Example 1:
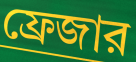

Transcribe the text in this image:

ফ্রেজার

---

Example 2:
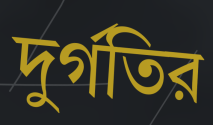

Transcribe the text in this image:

দুর্গতির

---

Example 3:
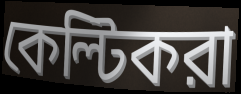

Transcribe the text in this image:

কেল্টিকরা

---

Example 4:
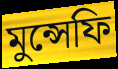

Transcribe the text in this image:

মুন্সেফি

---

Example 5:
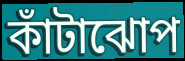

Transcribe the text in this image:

কাঁটাঝোপ